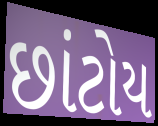
છાંટોય